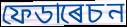
ফেডাৰেচন